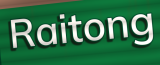
Raitong